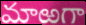
మాఱగా